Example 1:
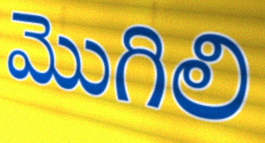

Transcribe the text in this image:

మొగిలి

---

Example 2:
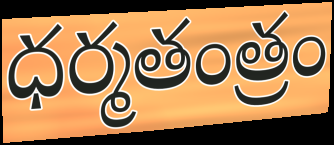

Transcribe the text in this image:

ధర్మతంత్రం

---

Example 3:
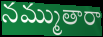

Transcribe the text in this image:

నమ్ముతారా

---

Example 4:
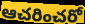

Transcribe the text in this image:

ఆచరించరో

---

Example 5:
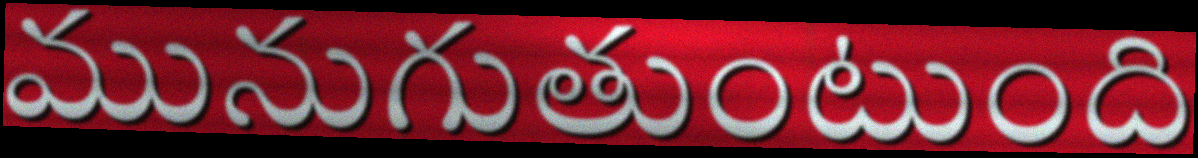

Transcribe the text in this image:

మునుగుతుంటుంది